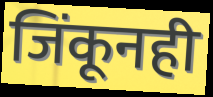
जिंकूनही